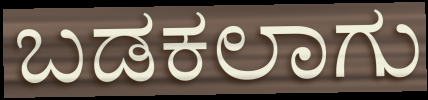
ಬಡಕಲಾಗು